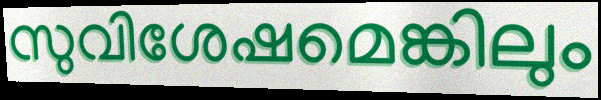
സുവിശേഷമെങ്കിലും